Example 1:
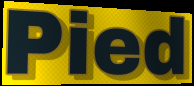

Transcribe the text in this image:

Pied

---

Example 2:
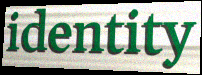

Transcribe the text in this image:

identity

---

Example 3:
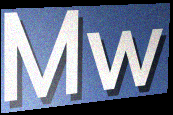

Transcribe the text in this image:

Mw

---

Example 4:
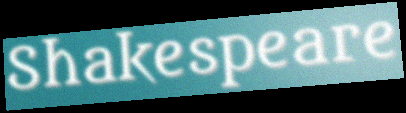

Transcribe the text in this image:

Shakespeare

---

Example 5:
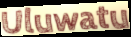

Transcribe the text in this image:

Uluwatu